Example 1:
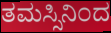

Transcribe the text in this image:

ತಮಸ್ಸಿನಿಂದ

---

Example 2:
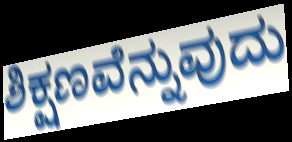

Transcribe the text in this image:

ಶಿಕ್ಷಣವೆನ್ನುವುದು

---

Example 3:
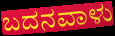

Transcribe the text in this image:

ಬದನವಾಳು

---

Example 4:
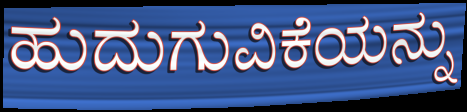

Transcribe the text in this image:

ಹುದುಗುವಿಕೆಯನ್ನು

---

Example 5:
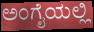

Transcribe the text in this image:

ಅಂಗೈಯಲ್ಲಿ